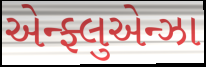
એન્ફ્લુએન્ઝા